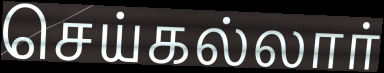
செய்கல்லார்